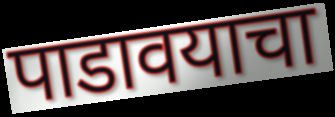
पाडावयाचा